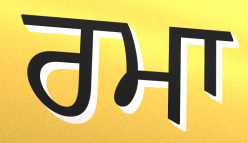
ਰਮਾ